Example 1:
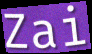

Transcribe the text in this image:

Zai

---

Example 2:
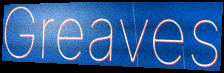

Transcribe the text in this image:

Greaves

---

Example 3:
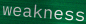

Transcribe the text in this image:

weakness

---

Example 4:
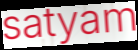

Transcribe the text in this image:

satyam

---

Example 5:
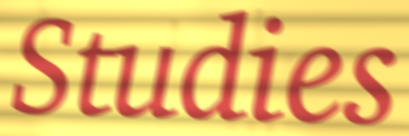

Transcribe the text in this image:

Studies